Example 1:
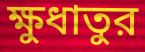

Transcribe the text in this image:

ক্ষুধাতুর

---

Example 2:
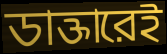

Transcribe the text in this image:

ডাক্তারেই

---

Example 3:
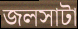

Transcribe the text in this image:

জলসাটা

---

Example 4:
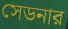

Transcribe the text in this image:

সেডনার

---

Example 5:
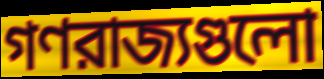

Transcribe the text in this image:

গণরাজ্যগুলো